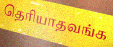
தெரியாதவங்க